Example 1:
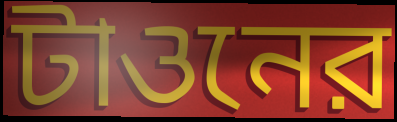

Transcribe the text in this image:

টাওনের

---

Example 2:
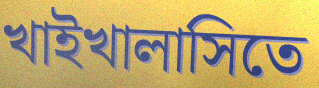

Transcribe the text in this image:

খাইখালাসিতে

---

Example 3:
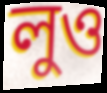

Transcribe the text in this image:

লুও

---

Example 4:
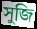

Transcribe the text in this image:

সুজি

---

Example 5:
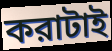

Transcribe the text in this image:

করাটাই